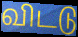
விடடு